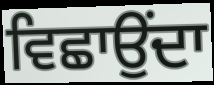
ਵਿਛਾਉਂਦਾ